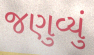
જણુવ્યું